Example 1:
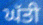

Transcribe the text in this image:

ਘੱਤੀ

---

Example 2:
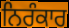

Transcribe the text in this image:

ਨਿਰੰਕਾਰ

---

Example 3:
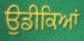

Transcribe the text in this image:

ਉਡੀਕਿਆਂ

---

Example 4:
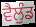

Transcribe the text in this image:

ਵੈਲੁੰਡ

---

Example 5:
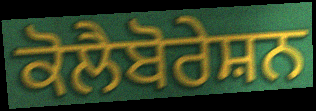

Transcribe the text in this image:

ਕੋਲੈਬੋਰੇਸ਼ਨ